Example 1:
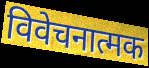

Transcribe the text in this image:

विवेचनात्मक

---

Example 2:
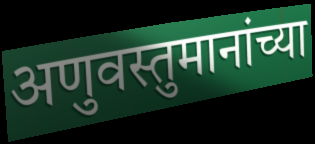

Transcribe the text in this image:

अणुवस्तुमानांच्या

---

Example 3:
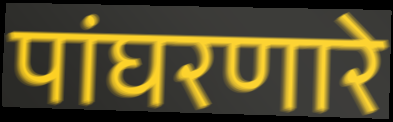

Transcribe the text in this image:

पांघरणारे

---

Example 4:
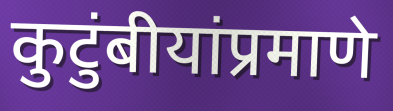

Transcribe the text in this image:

कुटुंबीयांप्रमाणे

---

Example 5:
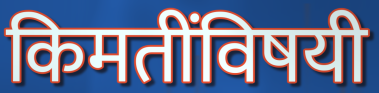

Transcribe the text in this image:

किमतींविषयी